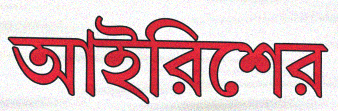
আইরিশের